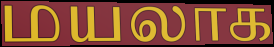
மயலாக